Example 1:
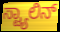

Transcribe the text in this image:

ಸ್ಟ್ಯಾಲಿನ್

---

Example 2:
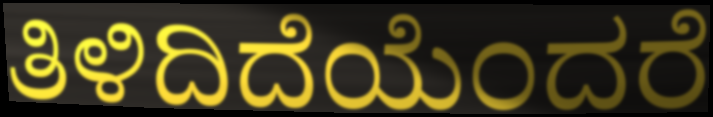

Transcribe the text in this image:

ತಿಳಿದಿದೆಯೆಂದರೆ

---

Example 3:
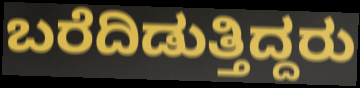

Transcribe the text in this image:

ಬರೆದಿಡುತ್ತಿದ್ದರು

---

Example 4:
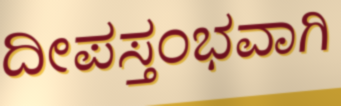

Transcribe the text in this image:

ದೀಪಸ್ತಂಭವಾಗಿ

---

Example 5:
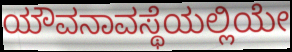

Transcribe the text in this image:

ಯೌವನಾವಸ್ಥೆಯಲ್ಲಿಯೇ